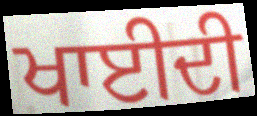
ਖਾਈਦੀ